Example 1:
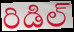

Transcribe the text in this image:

రిడిల్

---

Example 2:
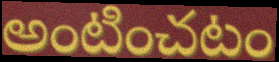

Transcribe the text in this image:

అంటించటం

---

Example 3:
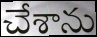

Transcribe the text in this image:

చేశాను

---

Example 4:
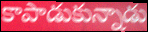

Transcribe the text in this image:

కాపాడుకున్నాడు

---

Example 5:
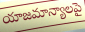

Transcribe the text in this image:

యాజమాన్యాలపై